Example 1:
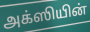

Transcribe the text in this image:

அக்ஸியின்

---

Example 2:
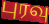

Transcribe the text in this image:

புரவு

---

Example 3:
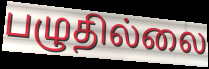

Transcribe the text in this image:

பழுதில்லை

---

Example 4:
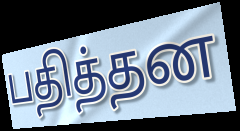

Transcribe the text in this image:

பதித்தன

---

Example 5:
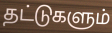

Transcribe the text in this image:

தட்டுகளும்